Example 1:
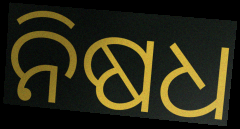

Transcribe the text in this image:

ନିଷଧ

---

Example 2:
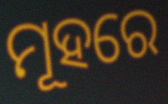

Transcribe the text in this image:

ମୂହରେ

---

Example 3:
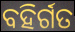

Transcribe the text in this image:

ବହିର୍ଗତ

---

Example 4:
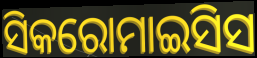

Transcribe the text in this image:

ସିକରୋମାଇସିସ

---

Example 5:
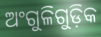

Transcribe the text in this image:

ଅଂଗୁଳିଗୁଡ଼ିକ